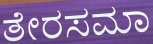
ತೇರಸಮಾ